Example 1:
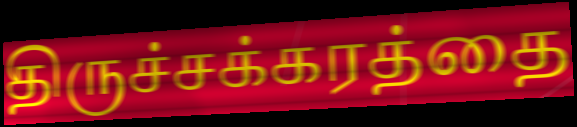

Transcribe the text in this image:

திருச்சக்கரத்தை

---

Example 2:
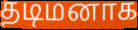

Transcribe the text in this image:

தடிமனாக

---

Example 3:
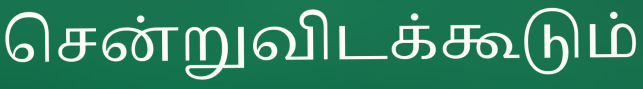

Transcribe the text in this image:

சென்றுவிடக்கூடும்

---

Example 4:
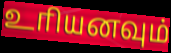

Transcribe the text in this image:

உரியனவும்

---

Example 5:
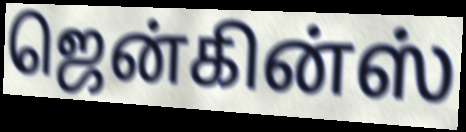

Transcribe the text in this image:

ஜென்கின்ஸ்